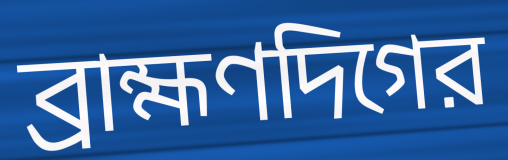
ব্রাহ্মণদিগের